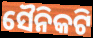
ସୈନିକଟି